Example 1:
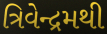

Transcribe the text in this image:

ત્રિવેન્દ્રમથી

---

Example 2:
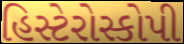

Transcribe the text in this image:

હિસ્ટેરોસ્કોપી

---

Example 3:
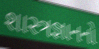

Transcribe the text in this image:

શાસ્ત્રજ્ઞાનનો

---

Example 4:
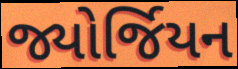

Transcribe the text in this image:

જ્યોર્જિયન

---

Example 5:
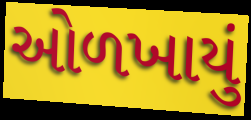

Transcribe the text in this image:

ઓળખાયું